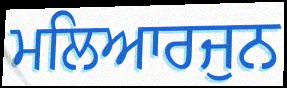
ਮਲਿਆਰਜੁਨ